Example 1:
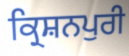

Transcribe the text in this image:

ਕ੍ਰਿਸ਼ਨਪੁਰੀ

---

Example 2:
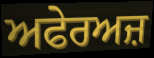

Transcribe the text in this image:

ਅਫੇਰਅਜ਼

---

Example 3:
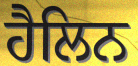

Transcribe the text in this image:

ਹੈਲਿਨ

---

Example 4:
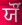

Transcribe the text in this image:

ਯੌਂ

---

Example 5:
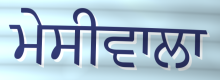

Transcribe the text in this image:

ਮੇਸੀਵਾਲਾ